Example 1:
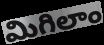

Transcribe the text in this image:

మిగిలాం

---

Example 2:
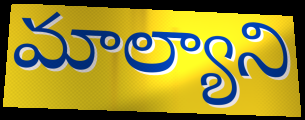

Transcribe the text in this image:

మాల్యాని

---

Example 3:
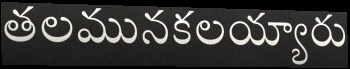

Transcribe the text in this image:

తలమునకలయ్యారు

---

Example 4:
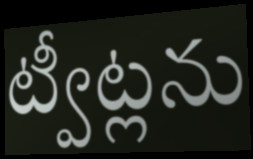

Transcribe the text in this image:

ట్వీట్లను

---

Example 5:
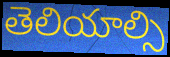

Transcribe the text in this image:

తెలియాల్సి